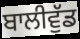
ਬਾਲੀਵੁੱਡ